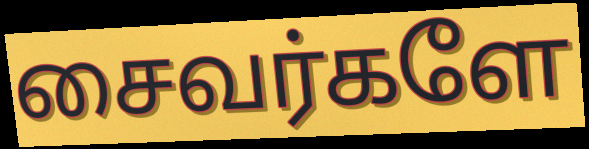
சைவர்களே